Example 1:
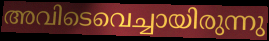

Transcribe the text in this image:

അവിടെവെച്ചായിരുന്നു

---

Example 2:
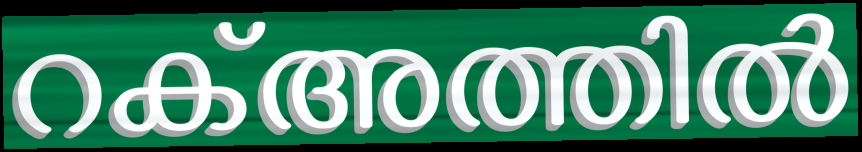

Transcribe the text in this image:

റക്അത്തിൽ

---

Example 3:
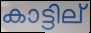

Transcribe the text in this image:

കാട്ടില്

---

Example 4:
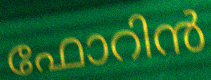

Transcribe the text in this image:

ഫോറിൻ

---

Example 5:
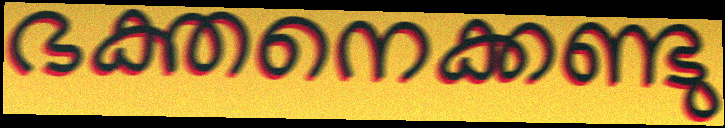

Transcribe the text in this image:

ഭക്തനെക്കണ്ടു